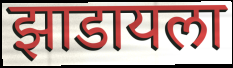
झाडायला